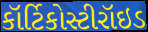
કૉર્ટિકોસ્ટીરૉઇડ